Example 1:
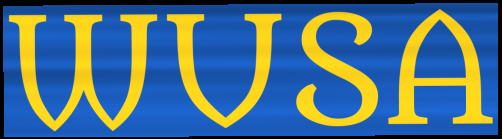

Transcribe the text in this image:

WUSA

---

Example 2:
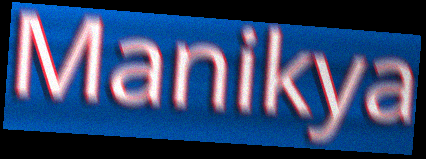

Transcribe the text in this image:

Manikya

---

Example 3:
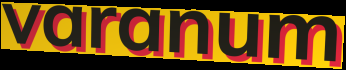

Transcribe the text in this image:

varanum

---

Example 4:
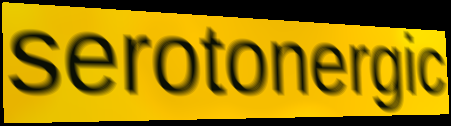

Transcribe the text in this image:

serotonergic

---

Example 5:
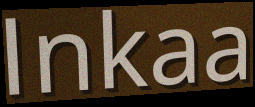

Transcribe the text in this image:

Inkaa